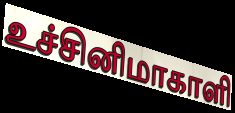
உச்சினிமாகாளி